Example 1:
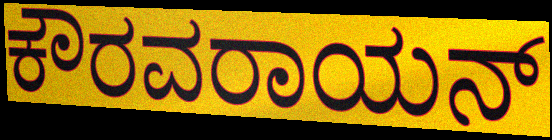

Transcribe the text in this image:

ಕೌರವರಾಯನ್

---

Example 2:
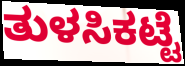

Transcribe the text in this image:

ತುಳಸಿಕಟ್ಟೆ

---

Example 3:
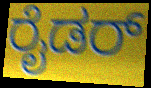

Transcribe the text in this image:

ರೈಡರ್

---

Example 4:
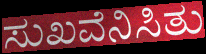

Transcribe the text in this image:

ಸುಖವೆನಿಸಿತು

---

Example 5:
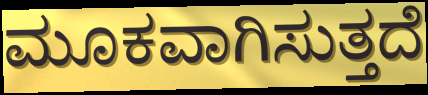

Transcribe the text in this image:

ಮೂಕವಾಗಿಸುತ್ತದೆ